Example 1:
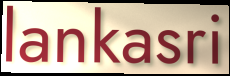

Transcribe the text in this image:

lankasri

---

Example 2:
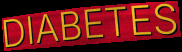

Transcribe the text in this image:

DIABETES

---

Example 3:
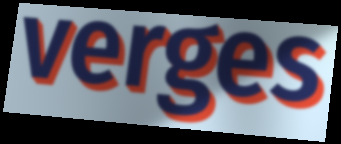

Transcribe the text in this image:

verges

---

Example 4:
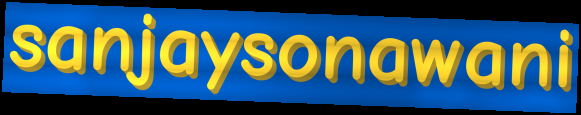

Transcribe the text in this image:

sanjaysonawani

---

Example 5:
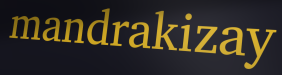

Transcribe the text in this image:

mandrakizay